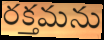
రక్తమను